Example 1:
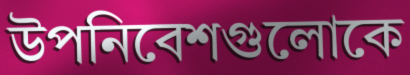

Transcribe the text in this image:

উপনিবেশগুলোকে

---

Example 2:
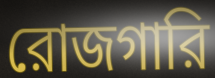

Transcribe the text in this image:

রোজগারি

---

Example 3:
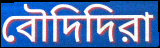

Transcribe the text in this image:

বৌদিদিরা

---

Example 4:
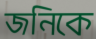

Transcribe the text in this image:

জনিকে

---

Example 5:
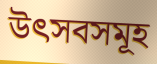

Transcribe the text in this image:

উৎসবসমূহ